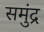
समुंद्र